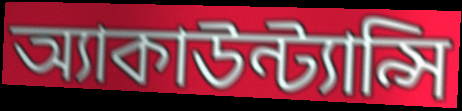
অ্যাকাউন্ট্যান্সি